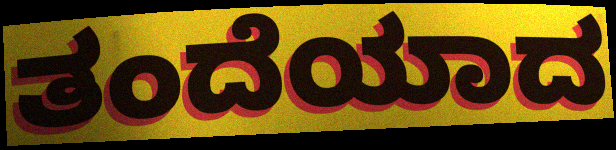
ತಂದೆಯಾದ